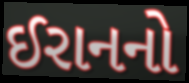
ઈરાનનો